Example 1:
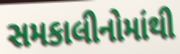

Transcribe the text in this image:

સમકાલીનોમાંથી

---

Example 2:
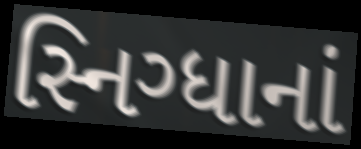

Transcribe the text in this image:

સ્નિગ્ધાનાં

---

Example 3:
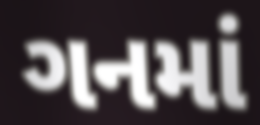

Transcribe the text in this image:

ગનમાં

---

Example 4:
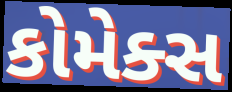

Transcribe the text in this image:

કોમેક્સ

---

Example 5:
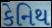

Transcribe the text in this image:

કેનિથ